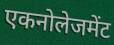
एकनोलेजमेंट